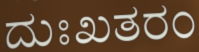
ದುಃಖತರಂ